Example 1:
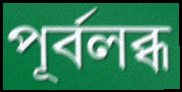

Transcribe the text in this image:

পূৰ্বলব্ধ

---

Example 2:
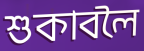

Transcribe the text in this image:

শুকাবলৈ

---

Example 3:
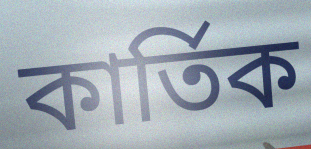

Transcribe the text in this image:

কাৰ্তিক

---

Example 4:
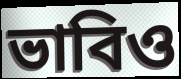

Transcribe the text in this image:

ভাবিও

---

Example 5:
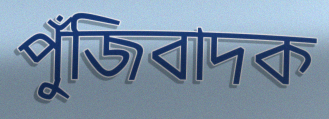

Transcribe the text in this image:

পুঁজিবাদক